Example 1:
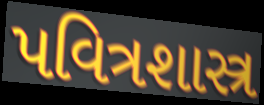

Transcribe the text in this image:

પવિત્રશાસ્ત્ર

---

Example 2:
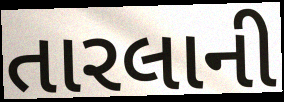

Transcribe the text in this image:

તારલાની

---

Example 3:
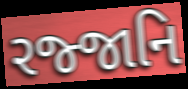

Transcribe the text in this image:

રજ્જાનિ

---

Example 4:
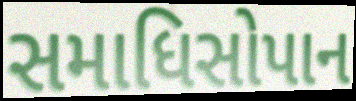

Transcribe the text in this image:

સમાધિસોપાન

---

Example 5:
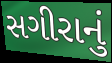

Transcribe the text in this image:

સગીરાનું